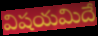
విషయమిదే